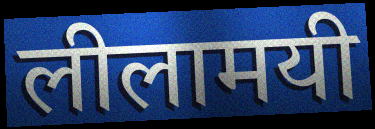
लीलामयी